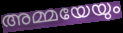
അമ്മയേയും